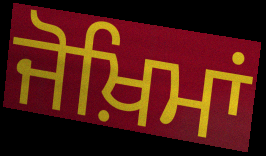
ਜੋਖ਼ਿਮਾਂ